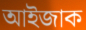
আইজাক